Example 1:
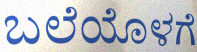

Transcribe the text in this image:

ಬಲೆಯೊಳಗೆ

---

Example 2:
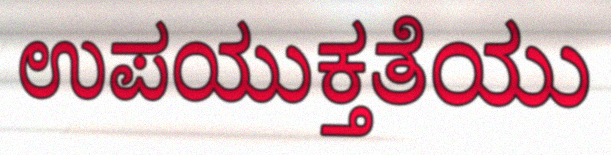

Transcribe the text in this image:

ಉಪಯುಕ್ತತೆಯು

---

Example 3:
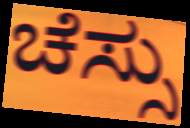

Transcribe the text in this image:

ಚೆಸ್ಸು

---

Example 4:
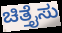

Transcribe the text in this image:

ಚಿತ್ತೈಸು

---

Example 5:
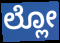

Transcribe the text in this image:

ಲ್ಲೋ